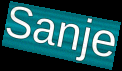
Sanje